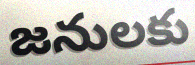
జనులకు